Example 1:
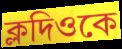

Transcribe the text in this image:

ক্লদিওকে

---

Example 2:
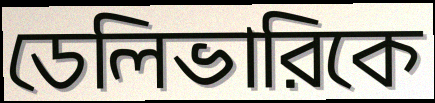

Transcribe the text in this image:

ডেলিভারিকে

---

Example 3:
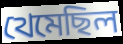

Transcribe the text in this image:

থেমেছিল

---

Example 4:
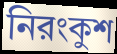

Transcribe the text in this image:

নিরংকুশ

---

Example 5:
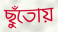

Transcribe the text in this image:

ছুঁতোয়